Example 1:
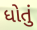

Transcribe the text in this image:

ધોતું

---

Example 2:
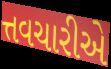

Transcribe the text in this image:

ત્તવચારીએ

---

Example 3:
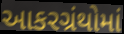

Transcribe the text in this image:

આકરગ્રંથોમાં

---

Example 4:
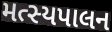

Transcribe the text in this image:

મત્સ્યપાલન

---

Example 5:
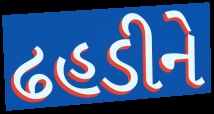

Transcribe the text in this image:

ઢહડીને